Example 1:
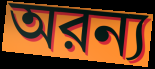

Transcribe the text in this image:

অরন্য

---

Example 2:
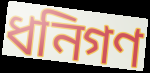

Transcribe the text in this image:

ধনিগণ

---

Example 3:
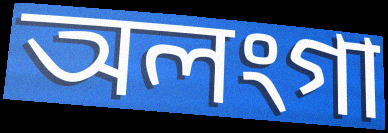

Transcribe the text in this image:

অলংগা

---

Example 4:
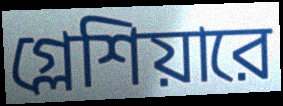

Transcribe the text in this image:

গ্লেশিয়ারে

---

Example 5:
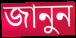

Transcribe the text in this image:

জানুন